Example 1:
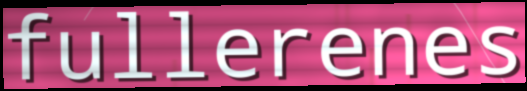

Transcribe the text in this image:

fullerenes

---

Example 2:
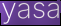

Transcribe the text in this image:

yasa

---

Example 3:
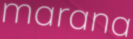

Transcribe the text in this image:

marana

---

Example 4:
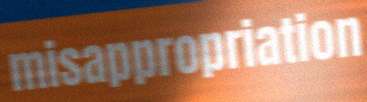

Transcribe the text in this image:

misappropriation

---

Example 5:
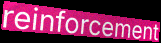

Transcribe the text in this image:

reinforcement